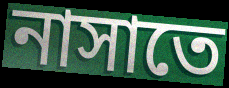
নাসাতে